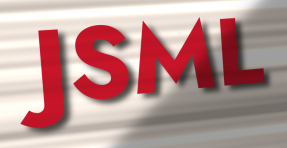
JSML